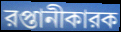
রপ্তানীকারক